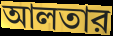
আলতার